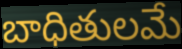
బాధితులమే